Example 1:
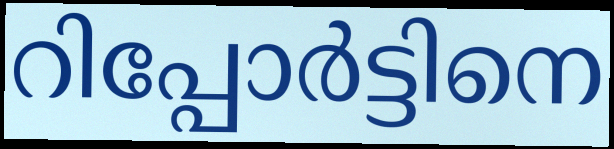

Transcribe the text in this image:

റിപ്പോർട്ടിനെ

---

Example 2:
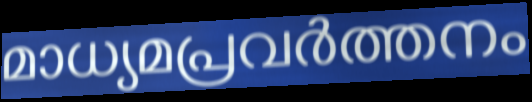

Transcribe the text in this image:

മാധ്യമപ്രവർത്തനം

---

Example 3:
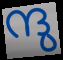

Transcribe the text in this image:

ന്ദു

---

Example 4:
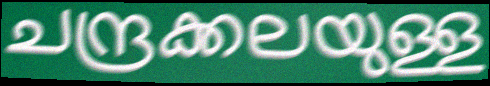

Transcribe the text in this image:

ചന്ദ്രക്കലയുള്ള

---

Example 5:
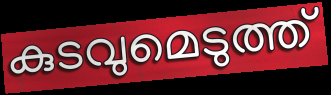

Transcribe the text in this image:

കുടവുമെടുത്ത്